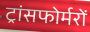
ट्रांसफोर्मरों